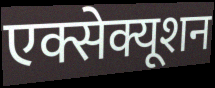
एक्सेक्यूशन